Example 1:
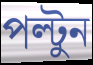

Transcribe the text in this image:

পল্টুন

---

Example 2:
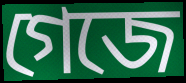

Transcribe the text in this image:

গেজে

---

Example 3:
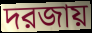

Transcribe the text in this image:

দরজায়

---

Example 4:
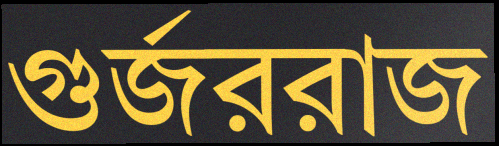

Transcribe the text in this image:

গুর্জররাজ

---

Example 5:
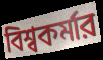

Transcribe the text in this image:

বিশ্বকর্মার